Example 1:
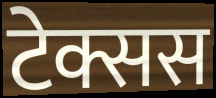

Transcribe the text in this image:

टेक्सस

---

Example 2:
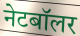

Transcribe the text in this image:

नेटबॉलर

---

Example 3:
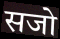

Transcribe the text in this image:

सजो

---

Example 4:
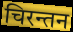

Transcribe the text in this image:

चिरन्तन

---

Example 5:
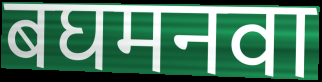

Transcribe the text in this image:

बघमनवा